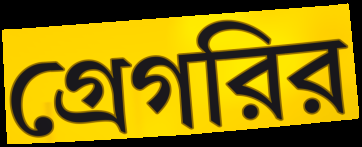
গ্রেগরির